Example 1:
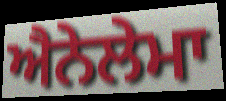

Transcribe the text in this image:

ਐਨੇਲੇਮਾ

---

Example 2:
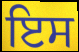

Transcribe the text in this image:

ਇਸ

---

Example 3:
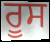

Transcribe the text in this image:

ਰੂਸ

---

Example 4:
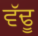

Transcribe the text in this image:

ਵੱਢੂ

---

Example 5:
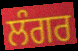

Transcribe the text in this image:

ਲੰਗਰ